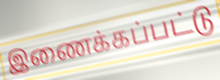
இணைக்கப்பட்டு